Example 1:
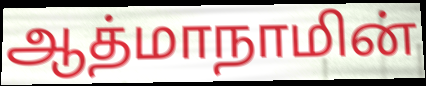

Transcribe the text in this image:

ஆத்மாநாமின்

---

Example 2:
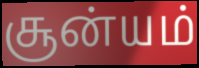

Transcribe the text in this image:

சூன்யம்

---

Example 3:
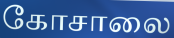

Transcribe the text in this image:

கோசாலை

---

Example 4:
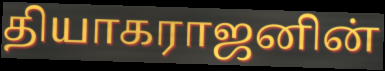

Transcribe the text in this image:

தியாகராஜனின்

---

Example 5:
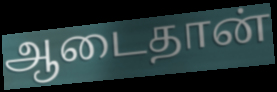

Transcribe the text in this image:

ஆடைதான்